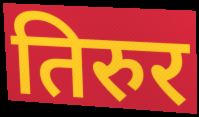
तिरुर